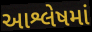
આશ્લેષમાં